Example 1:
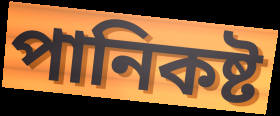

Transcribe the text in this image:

পানিকষ্ট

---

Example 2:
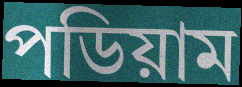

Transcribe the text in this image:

পডিয়াম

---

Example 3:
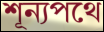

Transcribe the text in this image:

শূন্যপথে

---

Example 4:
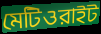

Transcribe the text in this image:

মেটিওরাইট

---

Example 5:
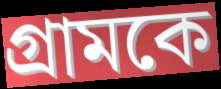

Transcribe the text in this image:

গ্রামকে